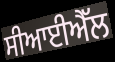
ਸੀਆਈਐੱਲ